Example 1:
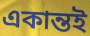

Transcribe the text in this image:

একান্তই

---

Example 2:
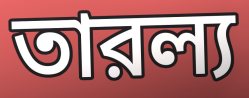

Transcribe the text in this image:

তারল্য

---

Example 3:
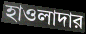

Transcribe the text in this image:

হাওলাদার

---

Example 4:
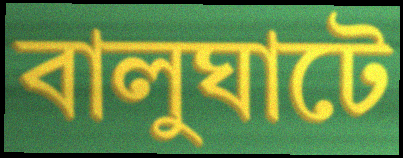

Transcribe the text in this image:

বালুঘাটে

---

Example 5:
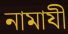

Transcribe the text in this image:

নামাযী